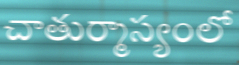
చాతుర్మాస్యంలో